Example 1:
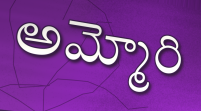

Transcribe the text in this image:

అమ్మోరి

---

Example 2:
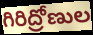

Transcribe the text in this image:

గిరిద్రోణుల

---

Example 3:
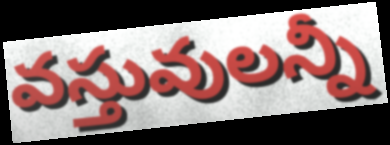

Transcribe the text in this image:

వస్తువులన్నీ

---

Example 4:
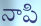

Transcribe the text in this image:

నాపి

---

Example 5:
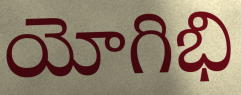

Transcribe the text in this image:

యోగిభి